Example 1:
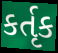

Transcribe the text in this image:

કર્તૃક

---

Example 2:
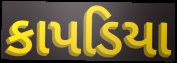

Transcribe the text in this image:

કાપડિયા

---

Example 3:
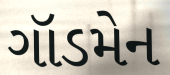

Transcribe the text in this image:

ગૉડમેન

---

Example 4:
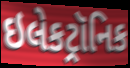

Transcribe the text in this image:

ઇલેકટ્રૉનિક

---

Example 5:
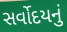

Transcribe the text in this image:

સર્વોદયનું